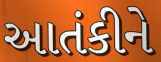
આતંકીને